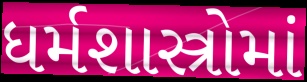
ધર્મશાસ્ત્રોમાં